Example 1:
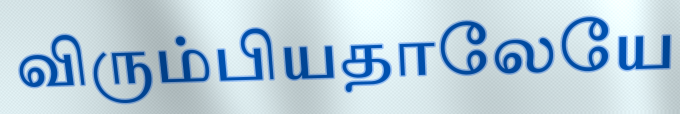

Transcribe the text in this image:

விரும்பியதாலேயே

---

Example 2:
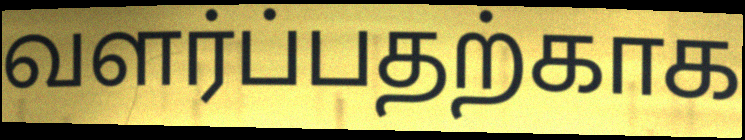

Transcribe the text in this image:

வளர்ப்பதற்காக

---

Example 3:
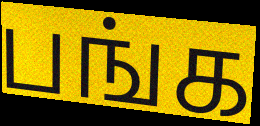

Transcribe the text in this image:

பங்க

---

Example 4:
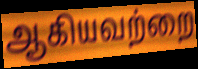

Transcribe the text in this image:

ஆகியவற்றை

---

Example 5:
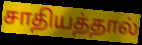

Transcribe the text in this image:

சாதியத்தால்